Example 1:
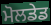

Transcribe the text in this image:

ਮੋਲਡੇਡ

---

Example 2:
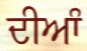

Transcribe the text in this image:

ਦੀਆੰ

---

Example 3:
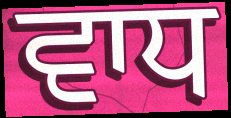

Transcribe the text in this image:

ਵਾਧ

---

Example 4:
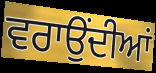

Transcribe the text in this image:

ਵਰਾਉਂਦੀਆਂ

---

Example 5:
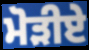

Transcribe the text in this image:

ਮੋੜੀਏ